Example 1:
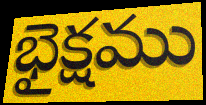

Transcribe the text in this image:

భైక్షము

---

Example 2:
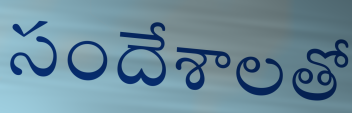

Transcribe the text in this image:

సందేశాలతో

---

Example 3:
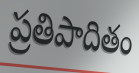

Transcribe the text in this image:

ప్రతిపాదితం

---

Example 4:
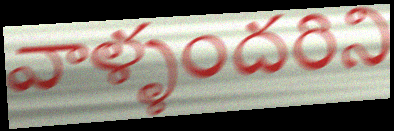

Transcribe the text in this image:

వాళ్ళందరిని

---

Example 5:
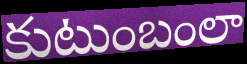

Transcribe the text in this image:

కుటుంబంలా